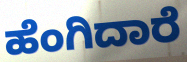
ಹೆಂಗಿದಾರೆ